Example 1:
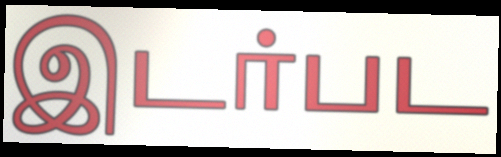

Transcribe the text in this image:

இடர்பட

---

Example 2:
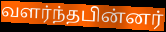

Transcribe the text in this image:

வளர்ந்தபின்னர்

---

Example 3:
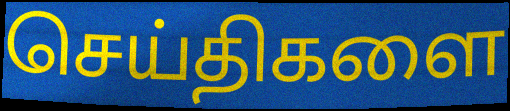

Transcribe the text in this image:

செய்திகளை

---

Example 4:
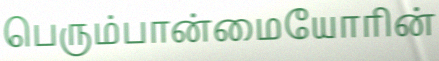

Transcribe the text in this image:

பெரும்பான்மையோரின்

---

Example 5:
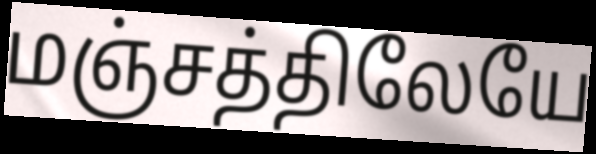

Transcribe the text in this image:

மஞ்சத்திலேயே